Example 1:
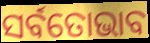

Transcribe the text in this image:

ସର୍ବତୋଭାବ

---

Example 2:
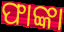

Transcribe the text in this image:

ଫାଙ୍କା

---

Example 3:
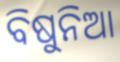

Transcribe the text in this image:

ବିଷୁନିଆ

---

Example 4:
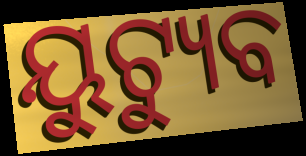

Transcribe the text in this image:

ୟୁଟ୍ୟୁବ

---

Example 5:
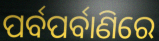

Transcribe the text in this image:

ପର୍ବପର୍ବାଣିରେ